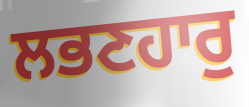
ਲਭਣਹਾਰੁ